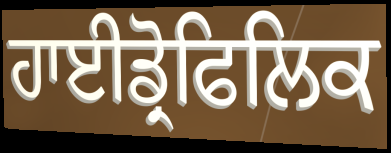
ਹਾਈਡ੍ਰੋਫਿਲਿਕ